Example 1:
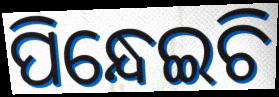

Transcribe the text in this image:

ପିନ୍ଧେଇଚି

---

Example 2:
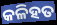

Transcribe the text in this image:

କଳିହତ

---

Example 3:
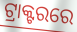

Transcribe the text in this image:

ଟ୍ରାକ୍ଟରରେ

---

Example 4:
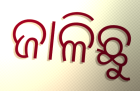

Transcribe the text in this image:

ଜାଳିଛୁ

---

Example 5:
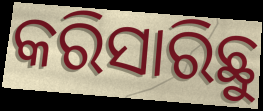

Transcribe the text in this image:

କରିସାରିଛୁ